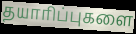
தயாரிப்புகளை